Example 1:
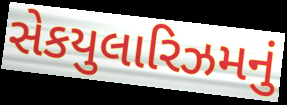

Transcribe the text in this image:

સેકયુલારિઝમનું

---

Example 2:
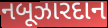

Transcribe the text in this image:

નબૂઝારદાન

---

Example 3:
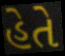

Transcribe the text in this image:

હેતે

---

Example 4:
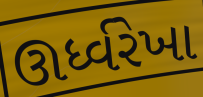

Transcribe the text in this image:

ઊર્ધ્વરેખા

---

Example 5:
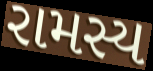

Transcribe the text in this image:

રામસ્ય